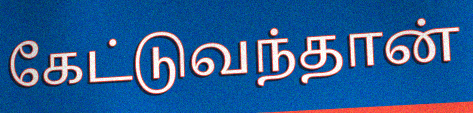
கேட்டுவந்தான்